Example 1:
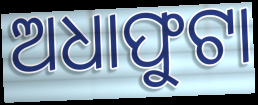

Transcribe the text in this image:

ଅଧାଫୁଟା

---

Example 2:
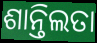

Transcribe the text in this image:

ଶାନ୍ତିଲତା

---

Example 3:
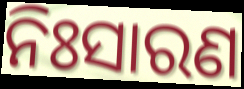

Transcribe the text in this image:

ନିଃସାରଣ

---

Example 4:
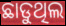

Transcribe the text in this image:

ଛାଡୁଥିଲ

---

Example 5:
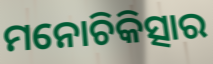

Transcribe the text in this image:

ମନୋଚିକିତ୍ସାର